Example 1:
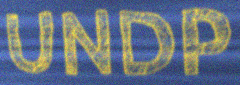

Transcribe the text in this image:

UNDP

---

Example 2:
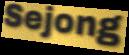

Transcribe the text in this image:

Sejong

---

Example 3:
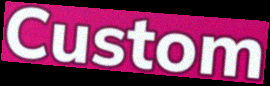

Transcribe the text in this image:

Custom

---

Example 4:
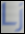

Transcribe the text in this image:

Lj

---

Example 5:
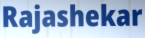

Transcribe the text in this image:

Rajashekar